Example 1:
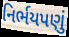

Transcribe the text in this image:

નિર્ભયપણું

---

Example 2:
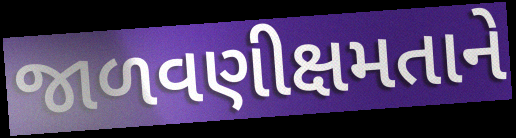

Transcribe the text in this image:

જાળવણીક્ષમતાને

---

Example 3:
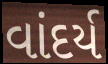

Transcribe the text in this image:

વાંદર્ય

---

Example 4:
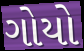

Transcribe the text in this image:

ગોયો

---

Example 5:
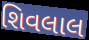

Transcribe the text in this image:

શિવલાલ